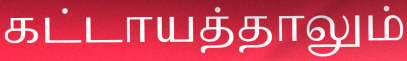
கட்டாயத்தாலும்